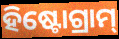
ହିଷ୍ଟୋଗ୍ରାମ୍